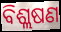
ବିଶ୍ଲଷଣ